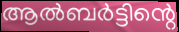
ആൽബർട്ടിന്റെ